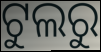
ଟୁଲରୁ